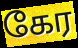
கேர